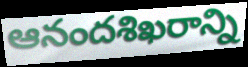
ఆనందశిఖరాన్ని